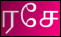
ரசே